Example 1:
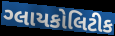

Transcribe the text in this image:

ગ્લાયકોલિટીક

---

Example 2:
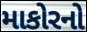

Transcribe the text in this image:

માકોરનો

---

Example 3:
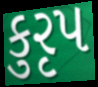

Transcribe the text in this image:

કુરૃપ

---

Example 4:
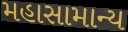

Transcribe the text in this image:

મહાસામાન્ય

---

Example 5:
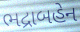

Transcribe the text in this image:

ભદ્રાબહેન